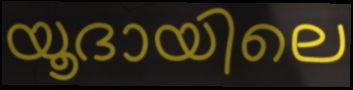
യൂദായിലെ